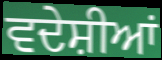
ਵਦੇਸ਼ੀਆਂ